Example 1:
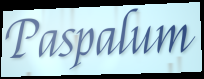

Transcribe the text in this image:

Paspalum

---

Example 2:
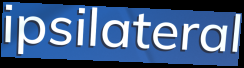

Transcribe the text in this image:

ipsilateral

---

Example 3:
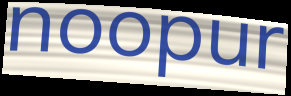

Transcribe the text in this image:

noopur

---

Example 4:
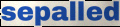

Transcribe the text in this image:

sepalled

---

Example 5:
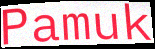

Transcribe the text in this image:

Pamuk